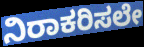
ನಿರಾಕರಿಸಲೇ